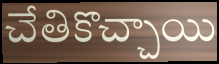
చేతికొచ్చాయి